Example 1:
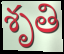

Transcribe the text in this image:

శృతి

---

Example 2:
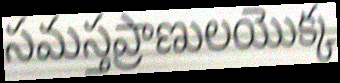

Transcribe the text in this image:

సమస్తప్రాణులయొక్క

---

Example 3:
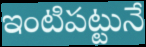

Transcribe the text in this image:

ఇంటిపట్టునే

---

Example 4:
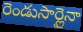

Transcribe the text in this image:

రెండుసార్లైనా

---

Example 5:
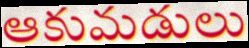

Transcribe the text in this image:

ఆకుమడులు